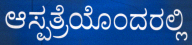
ಆಸ್ಪತ್ರೆಯೊಂದರಲ್ಲಿ